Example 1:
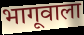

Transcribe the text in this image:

भागूवाला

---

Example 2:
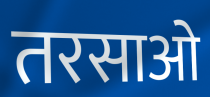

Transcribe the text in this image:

तरसाओ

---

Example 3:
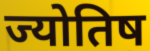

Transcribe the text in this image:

ज्योतिष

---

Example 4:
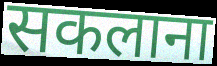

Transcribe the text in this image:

सकलाना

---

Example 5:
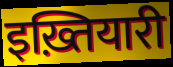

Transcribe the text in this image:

इख़्तियारी